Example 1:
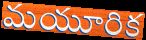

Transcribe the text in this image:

మయూరిక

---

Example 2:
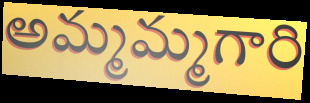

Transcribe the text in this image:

అమ్మమ్మగారి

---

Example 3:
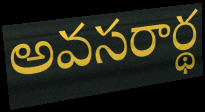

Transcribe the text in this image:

అవసరార్థ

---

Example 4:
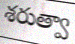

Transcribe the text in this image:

శరుత్వా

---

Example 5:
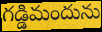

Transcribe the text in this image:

గడ్డిమందును